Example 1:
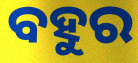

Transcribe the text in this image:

ବହୁର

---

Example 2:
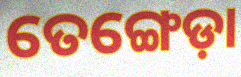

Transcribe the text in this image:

ତେଙ୍ଗେଡ଼ା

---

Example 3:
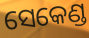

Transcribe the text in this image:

ସେକେଣ୍ଡ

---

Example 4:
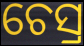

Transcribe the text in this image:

ଚେସ୍ର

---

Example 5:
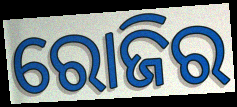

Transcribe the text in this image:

ରୋଜିର